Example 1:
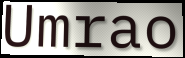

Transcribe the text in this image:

Umrao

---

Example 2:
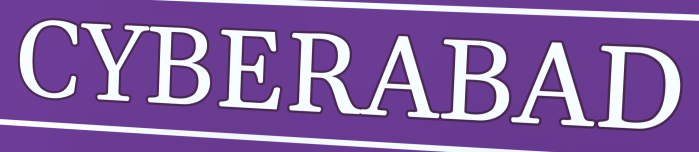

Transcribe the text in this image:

CYBERABAD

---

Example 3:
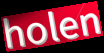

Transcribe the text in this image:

holen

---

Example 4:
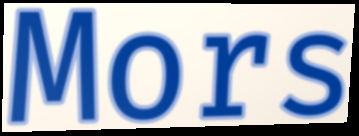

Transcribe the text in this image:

Mors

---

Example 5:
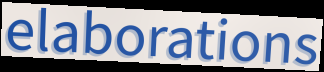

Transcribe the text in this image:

elaborations